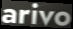
arivo